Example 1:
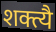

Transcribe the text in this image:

शक्त्यै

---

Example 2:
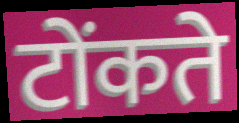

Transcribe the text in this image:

टोंकते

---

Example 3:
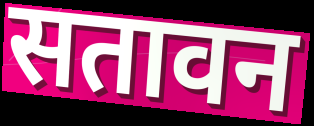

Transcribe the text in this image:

सतावन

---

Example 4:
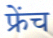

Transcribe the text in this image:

फ्रेंच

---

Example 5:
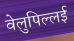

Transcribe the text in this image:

वेलुपिल्लई